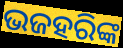
ଭଜହରିଙ୍କ